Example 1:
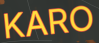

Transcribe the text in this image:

KARO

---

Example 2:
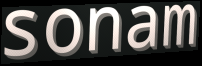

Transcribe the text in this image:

sonam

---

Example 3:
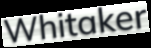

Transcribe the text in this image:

Whitaker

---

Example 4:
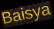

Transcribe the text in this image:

Baisya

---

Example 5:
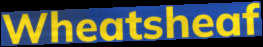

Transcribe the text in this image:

Wheatsheaf